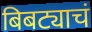
बिबट्याचं